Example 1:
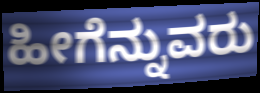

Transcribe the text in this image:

ಹೀಗೆನ್ನುವರು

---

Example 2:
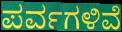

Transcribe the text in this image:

ಪರ್ವಗಳಿವೆ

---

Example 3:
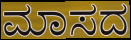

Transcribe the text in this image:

ಮಾಸದ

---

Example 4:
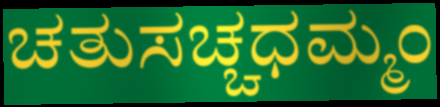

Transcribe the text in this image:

ಚತುಸಚ್ಚಧಮ್ಮಂ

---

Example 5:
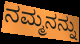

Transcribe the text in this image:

ನಮ್ಮನನ್ನು